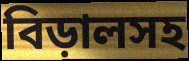
বিড়ালসহ